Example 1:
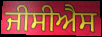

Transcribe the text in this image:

ਜੀਸੀਐਸ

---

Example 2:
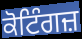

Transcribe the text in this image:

ਕੋਟਿੰਗਜ਼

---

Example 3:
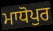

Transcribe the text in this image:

ਮਾਧੋਪੁਰ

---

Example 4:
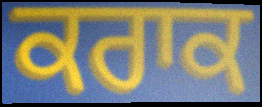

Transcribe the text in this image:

ਕਰਾਕ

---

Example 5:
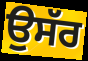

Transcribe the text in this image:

ਉਸੱਰ